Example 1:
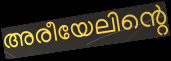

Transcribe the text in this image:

അരീയേലിന്റെ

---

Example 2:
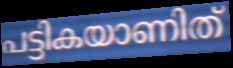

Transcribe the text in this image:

പട്ടികയാണിത്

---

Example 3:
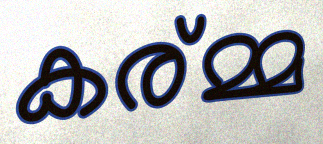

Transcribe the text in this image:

കര്മ്മ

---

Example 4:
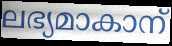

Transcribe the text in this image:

ലഭ്യമാകാന്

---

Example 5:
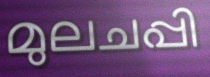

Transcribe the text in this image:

മുലചപ്പി